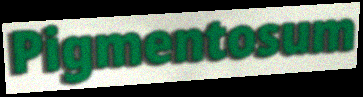
Pigmentosum